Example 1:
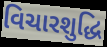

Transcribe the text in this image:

વિચારશુદ્ધિ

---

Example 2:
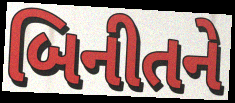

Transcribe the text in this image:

બિનીતને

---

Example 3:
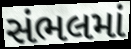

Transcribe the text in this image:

સંભલમાં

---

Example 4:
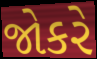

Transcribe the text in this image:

જોકરે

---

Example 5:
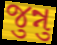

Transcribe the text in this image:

જુન્નુ